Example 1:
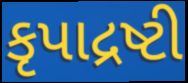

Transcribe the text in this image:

કૃપાદ્રષ્ટી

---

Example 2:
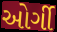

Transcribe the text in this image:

ઓર્ગી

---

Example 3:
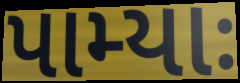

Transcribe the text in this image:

પામ્યાઃ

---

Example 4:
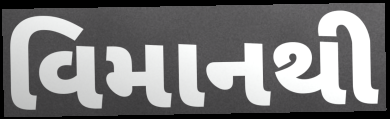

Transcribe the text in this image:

વિમાનથી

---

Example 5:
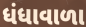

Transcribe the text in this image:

ધંધાવાળા